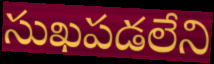
సుఖపడలేని